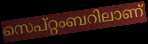
സെപ്റ്റംബറിലാണ്